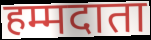
हम्मदाता